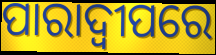
ପାରାଦ୍ୱୀପରେ